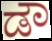
ಡೌ